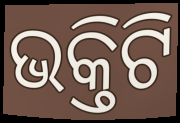
ଭକ୍ତିଟି